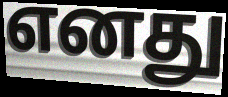
எனது